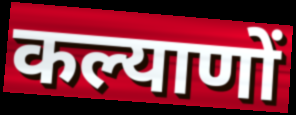
कल्याणों